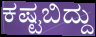
ಕಷ್ಟಬಿದ್ದು